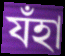
যঁহা